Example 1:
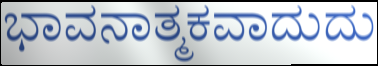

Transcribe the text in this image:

ಭಾವನಾತ್ಮಕವಾದುದು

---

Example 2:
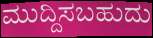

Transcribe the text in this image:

ಮುದ್ದಿಸಬಹುದು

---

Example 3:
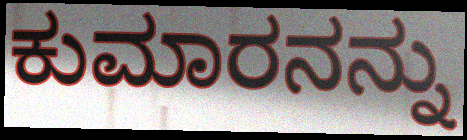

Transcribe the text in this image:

ಕುಮಾರನನ್ನು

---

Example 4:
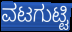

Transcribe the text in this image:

ವಟಗುಟ್ಟಿ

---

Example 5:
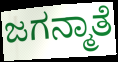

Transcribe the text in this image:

ಜಗನ್ಮಾತೆ